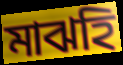
মাঝহি